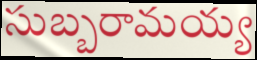
సుబ్బరామయ్య